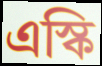
এস্কি